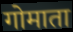
गोमाता